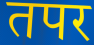
तपर